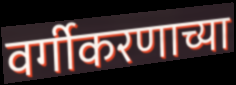
वर्गीकरणाच्या